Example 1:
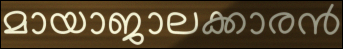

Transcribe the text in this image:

മായാജാലക്കാരൻ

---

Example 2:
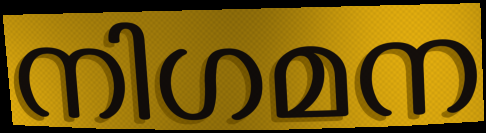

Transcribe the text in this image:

നിഗമന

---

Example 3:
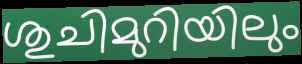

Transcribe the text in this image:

ശുചിമുറിയിലും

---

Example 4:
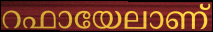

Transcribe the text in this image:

റഫായേലാണ്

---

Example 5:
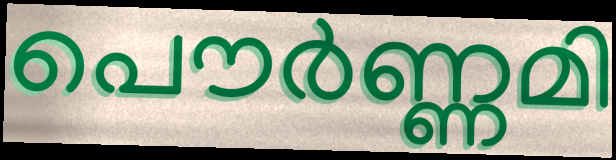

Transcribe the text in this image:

പൌർണ്ണമി